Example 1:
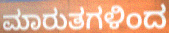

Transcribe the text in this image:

ಮಾರುತಗಳಿಂದ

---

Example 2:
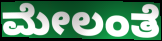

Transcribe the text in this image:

ಮೇಲಂತೆ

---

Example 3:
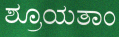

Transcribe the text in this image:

ಶ್ರೂಯತಾಂ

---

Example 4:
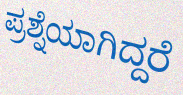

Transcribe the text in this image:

ಪ್ರಶ್ನೆಯಾಗಿದ್ದರೆ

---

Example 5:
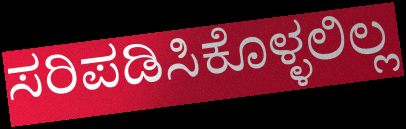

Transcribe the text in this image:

ಸರಿಪಡಿಸಿಕೊಳ್ಳಲಿಲ್ಲ